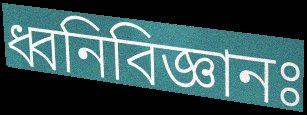
ধ্বনিবিজ্ঞানঃ